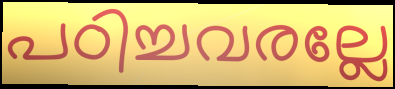
പഠിച്ചവരല്ലേ